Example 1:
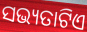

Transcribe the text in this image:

ସଭ୍ୟତାଟିଏ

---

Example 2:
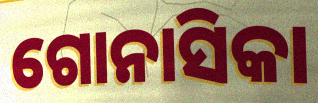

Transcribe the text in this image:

ଗୋନାସିକା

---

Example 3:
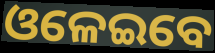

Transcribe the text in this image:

ଓଳେଇବେ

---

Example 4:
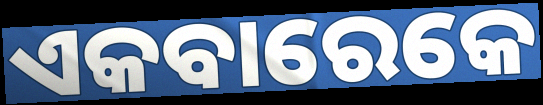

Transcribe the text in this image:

ଏକବାରେକେ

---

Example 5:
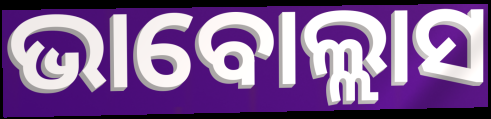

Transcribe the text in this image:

ଭାବୋଲ୍ଲାସ